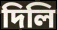
দিলি